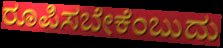
ರೂಪಿಸಬೇಕೆಂಬುದು